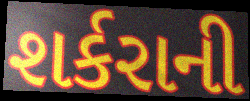
શર્કરાની